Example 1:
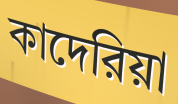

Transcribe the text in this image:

কাদেরিয়া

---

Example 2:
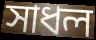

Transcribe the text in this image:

সাধল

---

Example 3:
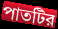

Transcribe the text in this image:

পাতটির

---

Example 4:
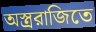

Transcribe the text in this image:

অস্ত্ররাজিতে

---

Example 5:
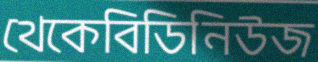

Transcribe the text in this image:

থেকেবিডিনিউজ